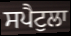
ਸਪੈਟੁਲਾ